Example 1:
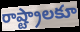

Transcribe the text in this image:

రాష్ట్రాలకూ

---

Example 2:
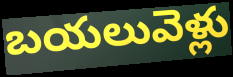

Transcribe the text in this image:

బయలువెళ్లు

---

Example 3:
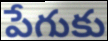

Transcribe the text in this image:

పేగుకు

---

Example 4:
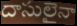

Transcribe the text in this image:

దాసులైనా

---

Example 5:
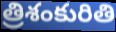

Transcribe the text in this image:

త్రిశంకురితి